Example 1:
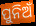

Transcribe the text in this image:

ପୁନିଅଁ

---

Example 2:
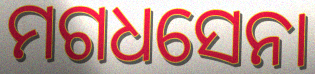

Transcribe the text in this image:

ମଗଧସେନା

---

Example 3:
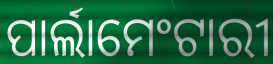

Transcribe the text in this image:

ପାର୍ଲାମେଂଟାରୀ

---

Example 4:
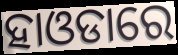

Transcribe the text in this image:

ହାଓଡାରେ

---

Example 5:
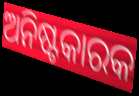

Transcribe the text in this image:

ଅନିଷ୍ଟକାରକ